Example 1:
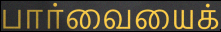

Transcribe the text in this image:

பார்வையைக்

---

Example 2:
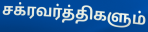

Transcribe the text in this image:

சக்ரவர்த்திகளும்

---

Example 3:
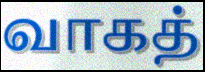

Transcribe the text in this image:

வாகத்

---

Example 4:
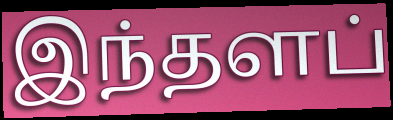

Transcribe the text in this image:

இந்தளப்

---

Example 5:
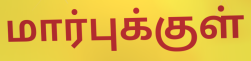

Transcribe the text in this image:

மார்புக்குள்